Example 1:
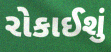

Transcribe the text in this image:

રોકાઈશું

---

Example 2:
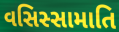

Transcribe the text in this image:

વસિસ્સામાતિ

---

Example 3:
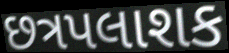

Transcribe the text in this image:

છત્રપલાશક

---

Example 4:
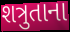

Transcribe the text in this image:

શત્રુતાના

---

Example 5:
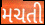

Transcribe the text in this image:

મચતી